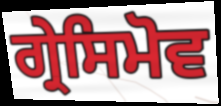
ਗ੍ਰੇਸਿਮੋਵ